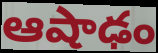
ఆషాఢం